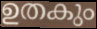
ഉതകും